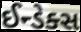
ઈન્ડેક્સ